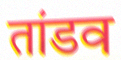
तांडव